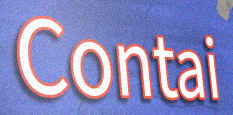
Contai